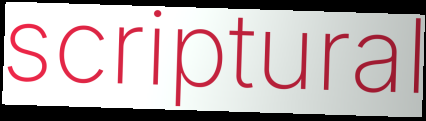
scriptural